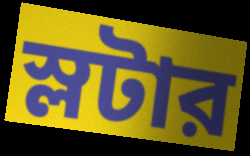
স্লটার